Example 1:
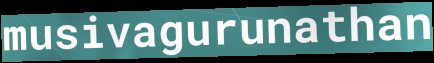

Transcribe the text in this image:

musivagurunathan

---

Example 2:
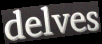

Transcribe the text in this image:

delves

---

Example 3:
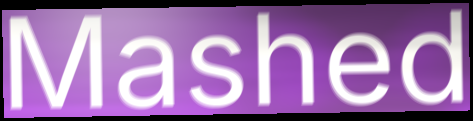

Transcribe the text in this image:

Mashed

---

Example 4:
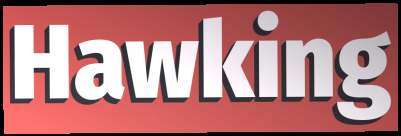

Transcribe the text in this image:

Hawking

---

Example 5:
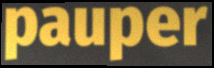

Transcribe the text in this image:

pauper